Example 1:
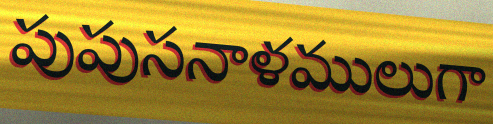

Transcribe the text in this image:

పుపుసనాళములుగా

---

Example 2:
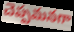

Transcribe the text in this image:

చెప్పమనగా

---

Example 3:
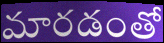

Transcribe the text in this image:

మారడంతో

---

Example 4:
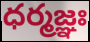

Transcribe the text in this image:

ధర్మజ్ఞః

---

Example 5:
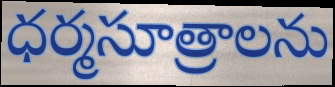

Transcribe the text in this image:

ధర్మసూత్రాలను